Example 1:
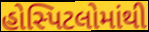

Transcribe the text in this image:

હોસ્પિટલોમાંથી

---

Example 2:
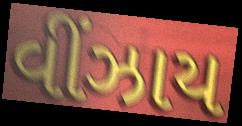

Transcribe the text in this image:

વીંઝાય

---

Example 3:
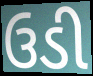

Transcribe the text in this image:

ઉડી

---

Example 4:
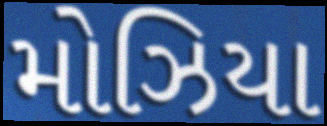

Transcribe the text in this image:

મોઝિયા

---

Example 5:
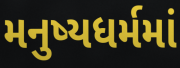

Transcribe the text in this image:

મનુષ્યધર્મમાં